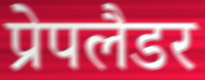
प्रेपलैडर